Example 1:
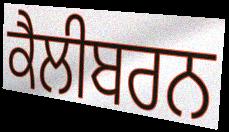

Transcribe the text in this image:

ਕੈਲੀਬਰਨ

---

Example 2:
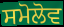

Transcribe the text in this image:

ਸਮੋਲੋਵ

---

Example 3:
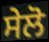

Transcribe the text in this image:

ਸੇਲੋ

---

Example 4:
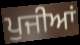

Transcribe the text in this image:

ਪੁਜੀਆਂ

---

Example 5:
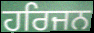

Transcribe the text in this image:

ਹਰਿਜਨ